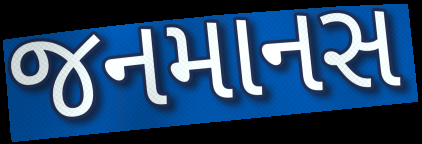
જનમાનસ